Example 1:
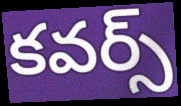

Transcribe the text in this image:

కవర్స్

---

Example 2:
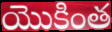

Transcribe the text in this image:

యొకింత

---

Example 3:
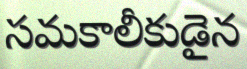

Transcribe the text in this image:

సమకాలీకుడైన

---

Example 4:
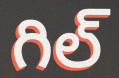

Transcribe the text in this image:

గిల్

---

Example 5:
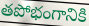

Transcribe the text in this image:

తపోభంగానికి